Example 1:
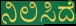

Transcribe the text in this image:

ನಿಲಿಸಿದೆ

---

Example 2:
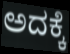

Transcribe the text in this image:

ಅದಕ್ಕೆ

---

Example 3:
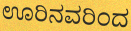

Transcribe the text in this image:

ಊರಿನವರಿಂದ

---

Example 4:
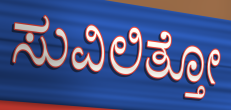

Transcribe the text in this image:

ಸುವಿಲಿತ್ತೋ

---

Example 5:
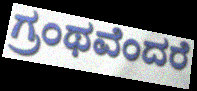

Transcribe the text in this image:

ಗ್ರಂಥವೆಂದರೆ